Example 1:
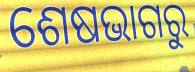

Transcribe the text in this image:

ଶେଷଭାଗରୁ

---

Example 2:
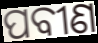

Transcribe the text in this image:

ପବୀଣ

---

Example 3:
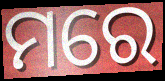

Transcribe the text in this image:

ମରେ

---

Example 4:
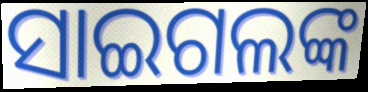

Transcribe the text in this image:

ସାଇଗଲଙ୍କ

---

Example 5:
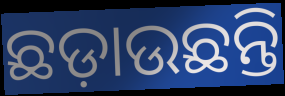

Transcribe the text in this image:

ଛଡ଼ାଉଛନ୍ତି